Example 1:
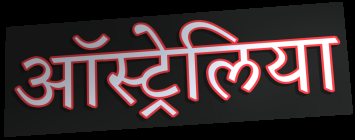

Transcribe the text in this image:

ऑस्ट्रेलिया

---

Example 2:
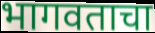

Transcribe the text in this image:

भागवताचा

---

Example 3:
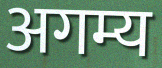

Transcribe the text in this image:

अगम्य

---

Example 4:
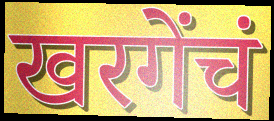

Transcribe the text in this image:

खरगेंचं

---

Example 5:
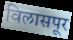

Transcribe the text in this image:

विलासपूर